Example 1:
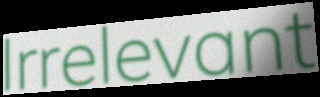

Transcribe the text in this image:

Irrelevant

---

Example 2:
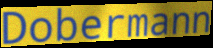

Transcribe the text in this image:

Dobermann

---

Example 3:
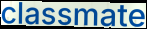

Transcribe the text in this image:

classmate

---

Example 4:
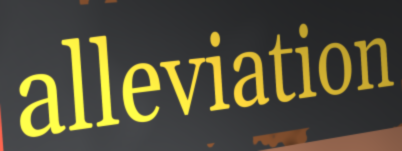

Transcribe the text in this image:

alleviation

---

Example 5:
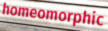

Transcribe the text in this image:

homeomorphic